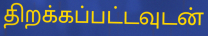
திறக்கப்பட்டவுடன்